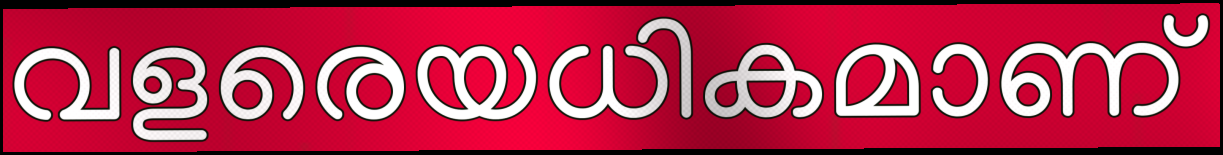
വളരെയധികമാണ്